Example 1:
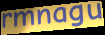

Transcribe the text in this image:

rmnagu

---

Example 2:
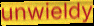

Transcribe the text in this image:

unwieldy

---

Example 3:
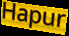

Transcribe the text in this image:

Hapur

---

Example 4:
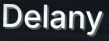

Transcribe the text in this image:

Delany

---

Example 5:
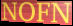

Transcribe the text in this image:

NOFN